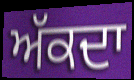
ਅੱਕਦਾ